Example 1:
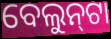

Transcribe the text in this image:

ବେଲୁନ୍‌ଟା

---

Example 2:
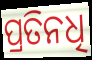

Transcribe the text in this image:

ପ୍ରତିନଧି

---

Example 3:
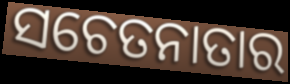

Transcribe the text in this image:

ସଚେତନାତାର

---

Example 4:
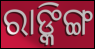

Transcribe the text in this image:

ରାଙ୍କିଙ୍ଗ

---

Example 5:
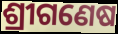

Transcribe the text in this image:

ଶ୍ରୀଗଣେଷ